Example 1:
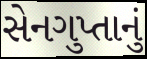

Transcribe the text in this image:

સેનગુપ્‍તાનું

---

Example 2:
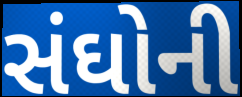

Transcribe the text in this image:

સંઘોની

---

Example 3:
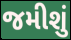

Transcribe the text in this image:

જમીશું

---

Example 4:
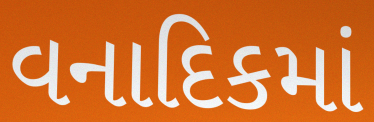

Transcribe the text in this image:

વનાદિકમાં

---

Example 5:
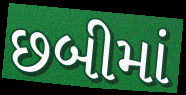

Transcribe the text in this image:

છબીમાં